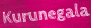
Kurunegala